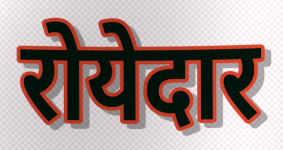
रोयेदार